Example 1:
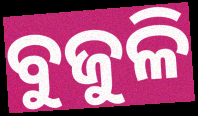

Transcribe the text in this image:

ବୁଜୁଳି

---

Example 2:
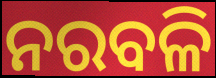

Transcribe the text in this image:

ନରବଳି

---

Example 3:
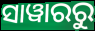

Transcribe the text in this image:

ସାୱାରରୁ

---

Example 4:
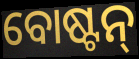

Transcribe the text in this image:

ବୋଷ୍ଟନ୍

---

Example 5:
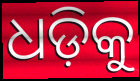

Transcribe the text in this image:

ଧଡ଼ିକୁ